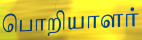
பொறியாளர்